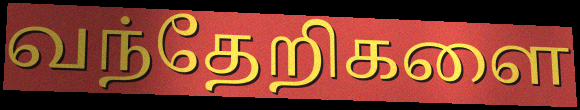
வந்தேறிகளை